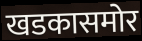
खडकासमोर